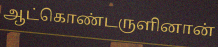
ஆட்கொண்டருளினான்